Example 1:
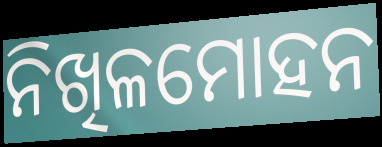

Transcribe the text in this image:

ନିଖିଳମୋହନ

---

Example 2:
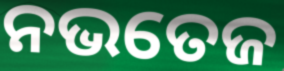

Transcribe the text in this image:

ନଭତେଜ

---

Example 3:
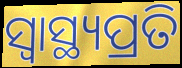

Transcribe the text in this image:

ସ୍ବାସ୍ଥ୍ୟପ୍ରତି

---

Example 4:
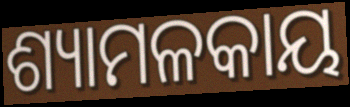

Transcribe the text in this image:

ଶ୍ୟାମଳକାୟ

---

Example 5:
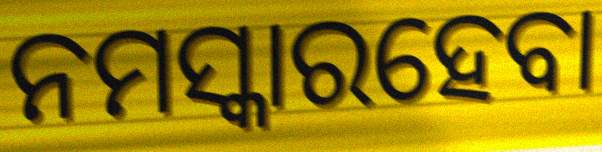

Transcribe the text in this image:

ନମସ୍କାରହେବା